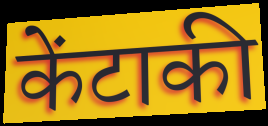
केंटाकी